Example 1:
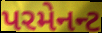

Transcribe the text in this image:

પરમેનન્ટ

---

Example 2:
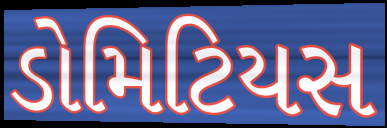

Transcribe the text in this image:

ડોમિટિયસ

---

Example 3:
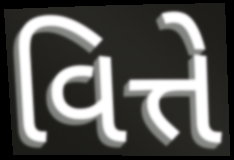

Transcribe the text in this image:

વિત્તે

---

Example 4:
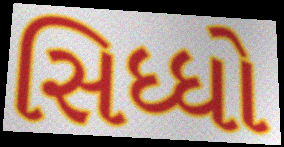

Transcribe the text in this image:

સિધ્ધો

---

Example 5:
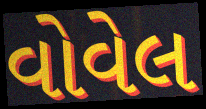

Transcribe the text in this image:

વોવેલ